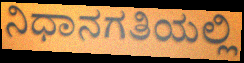
ನಿಧಾನಗತಿಯಲ್ಲಿ